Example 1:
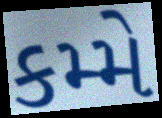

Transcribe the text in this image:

કમ્મે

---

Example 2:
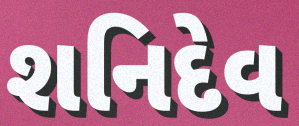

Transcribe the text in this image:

શનિદેવ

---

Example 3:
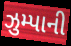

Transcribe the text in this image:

ઝુમ્પાની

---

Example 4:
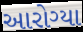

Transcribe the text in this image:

આરોગ્યા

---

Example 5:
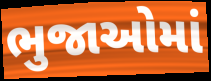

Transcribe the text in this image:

ભુજાઓમાં